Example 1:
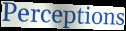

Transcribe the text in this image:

Perceptions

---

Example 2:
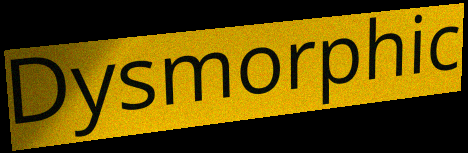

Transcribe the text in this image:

Dysmorphic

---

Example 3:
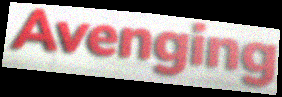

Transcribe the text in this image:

Avenging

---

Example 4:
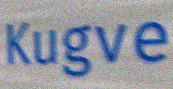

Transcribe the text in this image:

Kugve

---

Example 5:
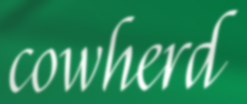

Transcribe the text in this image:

cowherd